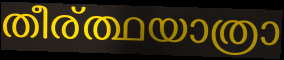
തീര്ത്ഥയാത്രാ